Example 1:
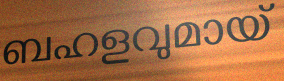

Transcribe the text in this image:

ബഹളവുമായ്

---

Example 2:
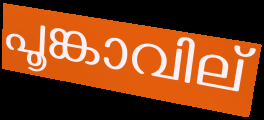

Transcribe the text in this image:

പൂങ്കാവില്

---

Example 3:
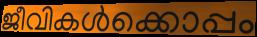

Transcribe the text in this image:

ജീവികൾക്കൊപ്പം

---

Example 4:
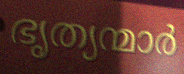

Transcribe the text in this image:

ഭൃത്യന്മാർ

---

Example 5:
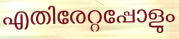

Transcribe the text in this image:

എതിരേറ്റപ്പോളും